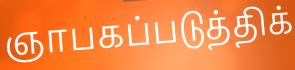
ஞாபகப்படுத்திக்